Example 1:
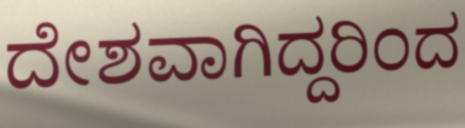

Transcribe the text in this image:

ದೇಶವಾಗಿದ್ದರಿಂದ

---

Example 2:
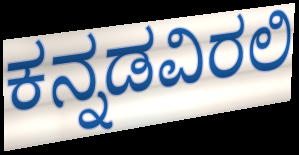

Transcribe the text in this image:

ಕನ್ನಡವಿರಲಿ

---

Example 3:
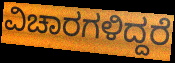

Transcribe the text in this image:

ವಿಚಾರಗಳಿದ್ದರೆ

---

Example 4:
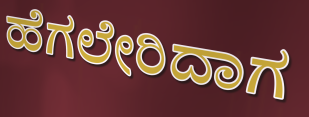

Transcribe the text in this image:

ಹೆಗಲೇರಿದಾಗ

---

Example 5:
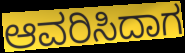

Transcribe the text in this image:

ಆವರಿಸಿದಾಗ